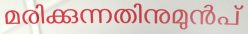
മരിക്കുന്നതിനുമുൻപ്